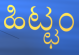
ಹಿಟ್ಟಂ